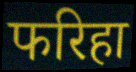
फरिहा